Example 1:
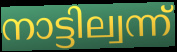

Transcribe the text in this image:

നാട്ടില്വന്ന്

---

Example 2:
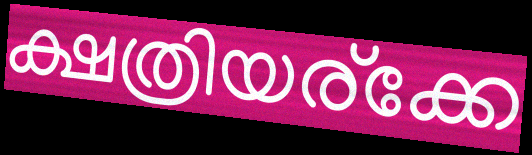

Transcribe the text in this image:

ക്ഷത്രിയര്ക്കേ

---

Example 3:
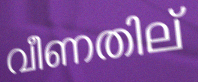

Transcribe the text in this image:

വീണതില്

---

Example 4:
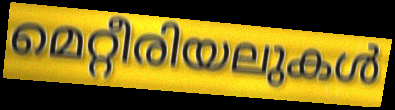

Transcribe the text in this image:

മെറ്റീരിയലുകൾ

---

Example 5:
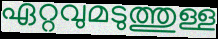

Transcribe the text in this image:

ഏറ്റവുമടുത്തുള്ള